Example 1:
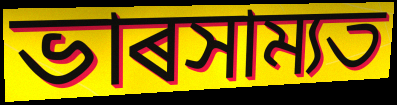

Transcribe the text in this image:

ভাৰসাম্যত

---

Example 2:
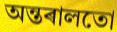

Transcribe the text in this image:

অন্তৰালতো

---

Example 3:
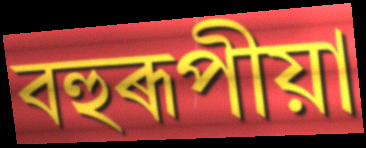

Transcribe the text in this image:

বহুৰূপীয়া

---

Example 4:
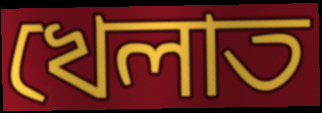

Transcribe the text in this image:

খেলাত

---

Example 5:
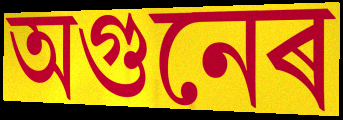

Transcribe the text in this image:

অগুনেৰ